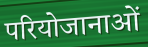
परियोजानाओं